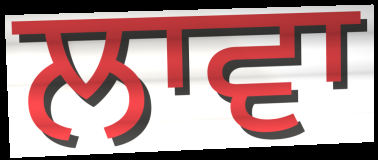
ਲਾਵਾ